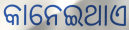
କାନେଇଥାଏ